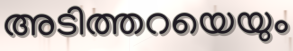
അടിത്തറയെയും